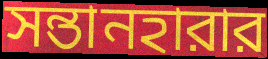
সন্তানহারার